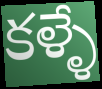
కళ్ళే